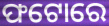
ଫଟୋରେ